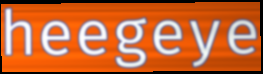
heegeye